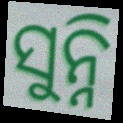
ସୁନ୍ନି